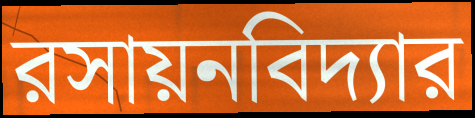
রসায়নবিদ্যার